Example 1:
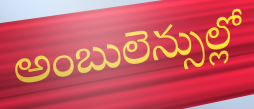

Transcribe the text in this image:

అంబులెన్సుల్లో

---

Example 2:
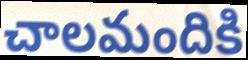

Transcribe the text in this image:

చాలమందికి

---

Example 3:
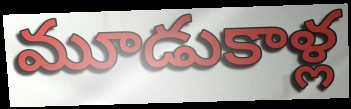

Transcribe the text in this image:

మూడుకాళ్ల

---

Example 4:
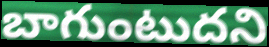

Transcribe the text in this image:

బాగుంటుదని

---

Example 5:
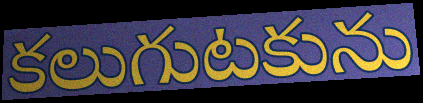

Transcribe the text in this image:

కలుగుటకును